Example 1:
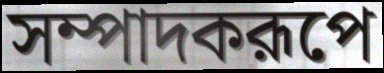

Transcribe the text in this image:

সম্পাদকরূপে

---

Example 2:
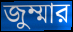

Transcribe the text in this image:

জুম্মার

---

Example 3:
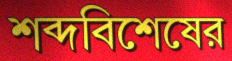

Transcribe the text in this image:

শব্দবিশেষের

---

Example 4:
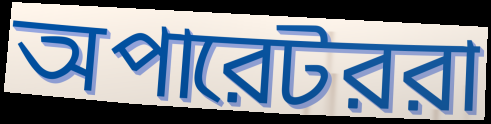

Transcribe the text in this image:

অপারেটররা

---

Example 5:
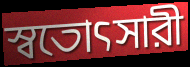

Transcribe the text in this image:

স্বতোৎসারী